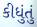
કીધુંતું